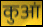
कुआं